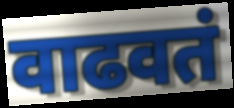
वाढवतं